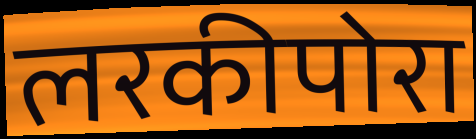
लरकीपोरा